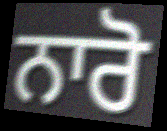
ਨਾਰੋ